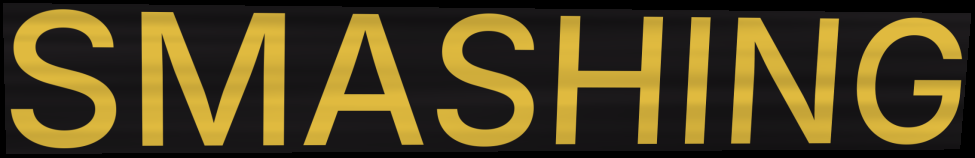
SMASHING